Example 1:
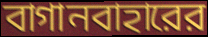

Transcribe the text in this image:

বাগানবাহারের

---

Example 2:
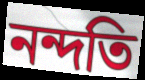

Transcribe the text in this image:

নন্দতি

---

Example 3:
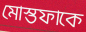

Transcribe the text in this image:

মোস্তফাকে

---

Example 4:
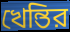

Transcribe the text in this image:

খেন্তির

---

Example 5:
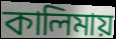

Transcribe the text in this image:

কালিমায়